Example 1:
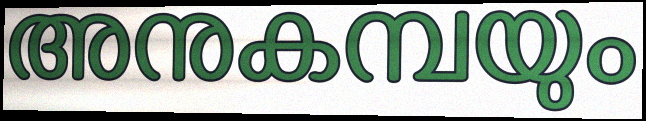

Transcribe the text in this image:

അനുകമ്പയും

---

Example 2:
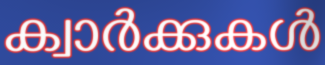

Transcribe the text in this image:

ക്വാർക്കുകൾ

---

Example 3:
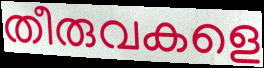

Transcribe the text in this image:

തീരുവകളെ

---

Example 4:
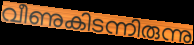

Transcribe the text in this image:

വീണുകിടന്നിരുന്നു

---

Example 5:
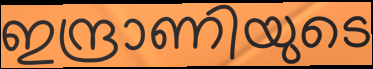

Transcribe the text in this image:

ഇന്ദ്രാണിയുടെ